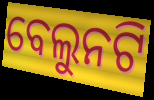
ବେଲୁନଟି